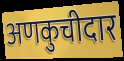
अणकुचीदार